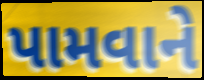
પામવાને